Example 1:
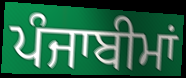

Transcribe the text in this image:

ਪੰਜਾਬੀਮਾਂ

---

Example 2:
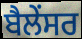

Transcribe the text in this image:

ਬੈਲੇਂਸਰ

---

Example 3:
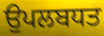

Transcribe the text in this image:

ਉਪਲਬਧਤ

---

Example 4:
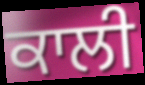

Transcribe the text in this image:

ਕਾਲੀ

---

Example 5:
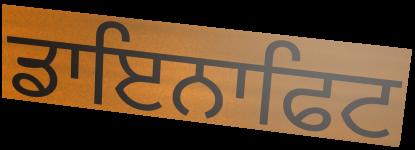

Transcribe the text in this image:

ਡਾਇਨਾਫਿਟ